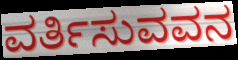
ವರ್ತಿಸುವವನ